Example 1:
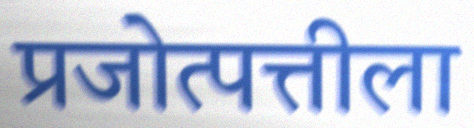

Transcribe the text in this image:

प्रजोत्पत्तीला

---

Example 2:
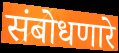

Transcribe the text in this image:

संबोधणारे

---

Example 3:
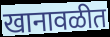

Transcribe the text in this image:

खानावळीत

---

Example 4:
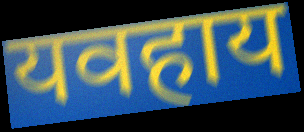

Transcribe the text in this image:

यवहाय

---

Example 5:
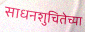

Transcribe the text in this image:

साधनशुचितेच्या